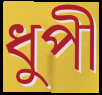
ধুপী